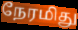
நேரமிது